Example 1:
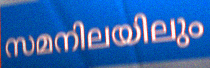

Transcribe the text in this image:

സമനിലയിലും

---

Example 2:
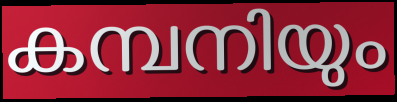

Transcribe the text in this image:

കമ്പനിയും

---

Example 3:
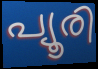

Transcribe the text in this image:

പ്യൂരി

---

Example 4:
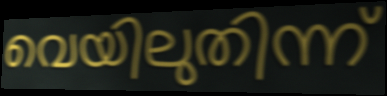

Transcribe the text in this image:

വെയിലുതിന്ന്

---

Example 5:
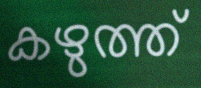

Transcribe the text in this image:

കഴുത്ത്